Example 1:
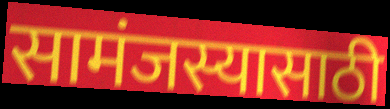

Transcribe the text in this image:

सामंजस्यासाठी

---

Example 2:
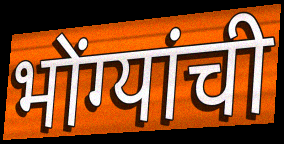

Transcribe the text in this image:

भोंग्यांची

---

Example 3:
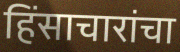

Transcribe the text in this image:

हिंसाचारांचा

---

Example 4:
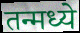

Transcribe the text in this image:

तन्मध्ये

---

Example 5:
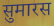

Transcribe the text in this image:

सुमारस